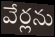
వేర్లను